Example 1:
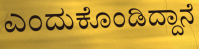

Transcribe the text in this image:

ಎಂದುಕೊಂಡಿದ್ದಾನೆ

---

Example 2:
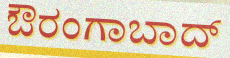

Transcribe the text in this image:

ಔರಂಗಾಬಾದ್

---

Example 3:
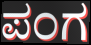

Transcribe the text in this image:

ಪಂಗ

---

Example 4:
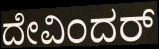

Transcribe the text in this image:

ದೇವಿಂದರ್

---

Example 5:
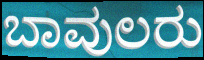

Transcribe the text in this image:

ಬಾವುಲರು